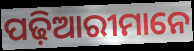
ପଢ଼ିଆରୀମାନେ